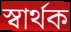
স্বাৰ্থক